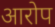
आरोप